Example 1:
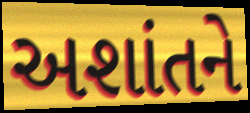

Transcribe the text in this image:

અશાંતને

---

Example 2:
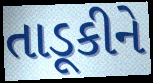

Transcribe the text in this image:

તાડૂકીને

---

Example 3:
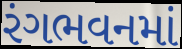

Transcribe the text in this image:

રંગભવનમાં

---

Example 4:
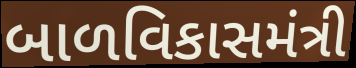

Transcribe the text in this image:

બાળવિકાસમંત્રી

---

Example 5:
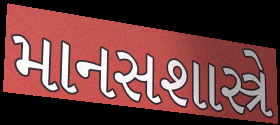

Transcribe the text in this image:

માનસશાસ્ત્રે